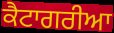
ਕੈਟਾਗਰੀਆ